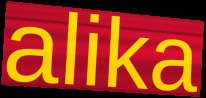
alika